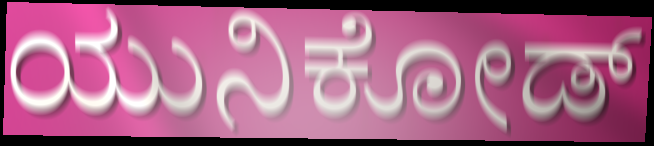
ಯುನಿಕೋಡ್